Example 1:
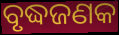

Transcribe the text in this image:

ବୃଦ୍ଧଜଣକ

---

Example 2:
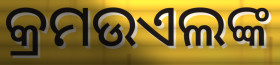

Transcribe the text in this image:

କ୍ରମଉଏଲଙ୍କ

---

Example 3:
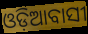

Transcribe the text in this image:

ଓଡ଼ିଆବାସୀ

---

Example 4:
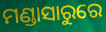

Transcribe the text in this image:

ମଣ୍ଡାସାରୁରେ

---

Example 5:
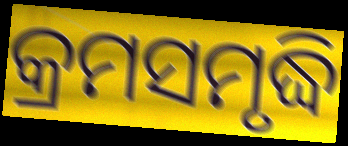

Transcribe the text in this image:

କ୍ରମସମୃଦ୍ଧି